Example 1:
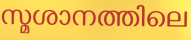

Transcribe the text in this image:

സ്മശാനത്തിലെ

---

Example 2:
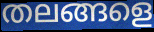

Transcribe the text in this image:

തലങ്ങളെ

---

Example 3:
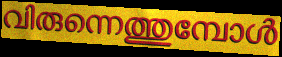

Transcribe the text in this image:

വിരുന്നെത്തുമ്പോൾ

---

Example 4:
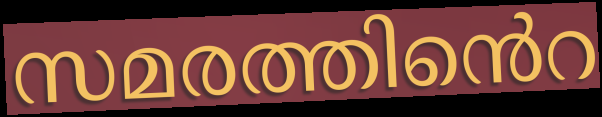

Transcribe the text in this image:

സമരത്തിൻെറ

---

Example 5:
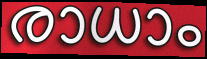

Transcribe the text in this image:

രാധാം